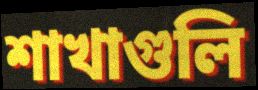
শাখাগুলি